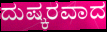
ದುಷ್ಕರವಾದ